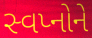
સ્વપ્નોને